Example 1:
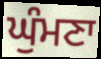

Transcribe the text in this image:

ਘੁੰਮਣਾ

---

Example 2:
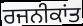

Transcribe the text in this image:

ਰਜਨੀਕਾਂਤ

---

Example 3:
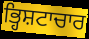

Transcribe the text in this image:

ਭ੍ਹਿਸ਼ਟਾਚਾਰ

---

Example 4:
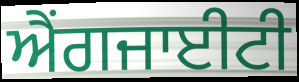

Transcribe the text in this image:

ਐਂਗਜਾਈਟੀ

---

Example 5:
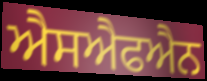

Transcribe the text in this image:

ਐਸਐਫਐਨ